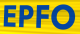
EPFO